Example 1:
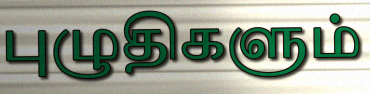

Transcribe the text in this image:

புழுதிகளும்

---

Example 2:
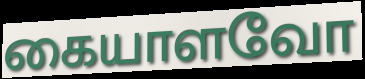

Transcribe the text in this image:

கையாளவோ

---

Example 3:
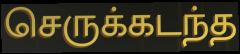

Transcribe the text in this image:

செருக்கடந்த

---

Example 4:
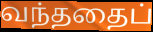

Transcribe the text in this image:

வந்ததைப்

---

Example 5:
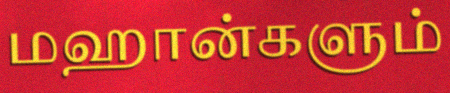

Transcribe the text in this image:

மஹான்களும்